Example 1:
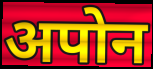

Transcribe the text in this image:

अपोन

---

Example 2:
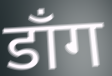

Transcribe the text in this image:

डाँग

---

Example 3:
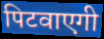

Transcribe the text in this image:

पिटवाएगी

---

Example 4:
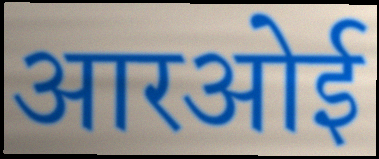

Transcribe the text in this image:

आरओई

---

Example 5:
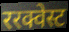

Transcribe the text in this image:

ररक्वेस्ट